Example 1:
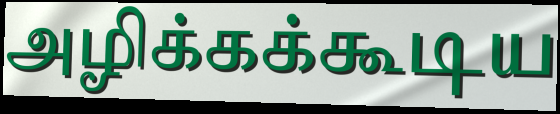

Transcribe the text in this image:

அழிக்கக்கூடிய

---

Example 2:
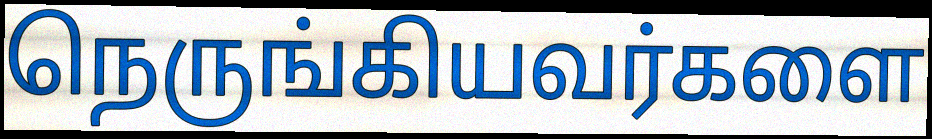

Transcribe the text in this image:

நெருங்கியவர்களை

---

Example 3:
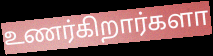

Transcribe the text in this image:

உணர்கிறார்களா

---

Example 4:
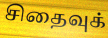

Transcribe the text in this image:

சிதைவுக்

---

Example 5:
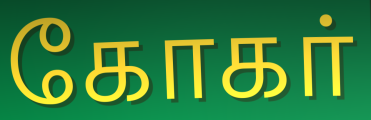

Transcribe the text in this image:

கோகர்